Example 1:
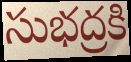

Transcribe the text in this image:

సుభద్రకి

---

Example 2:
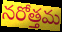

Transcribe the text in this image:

నరోత్తమ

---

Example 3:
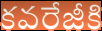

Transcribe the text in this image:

కవరేజీకి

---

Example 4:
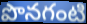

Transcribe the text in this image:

పొనగంటి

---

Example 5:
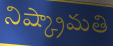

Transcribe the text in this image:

నిష్క్రామతి